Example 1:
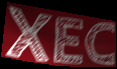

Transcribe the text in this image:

XEC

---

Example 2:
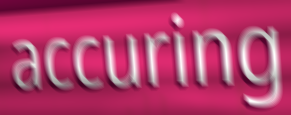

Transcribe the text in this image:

accuring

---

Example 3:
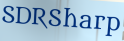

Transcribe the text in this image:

SDRSharp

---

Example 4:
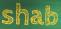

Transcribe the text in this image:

shab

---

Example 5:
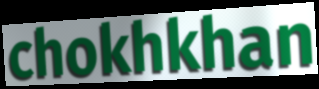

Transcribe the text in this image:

chokhkhan